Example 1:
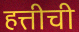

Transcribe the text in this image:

हत्तीची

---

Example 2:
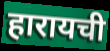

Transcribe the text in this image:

हारायची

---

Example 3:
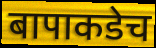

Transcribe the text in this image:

बापाकडेच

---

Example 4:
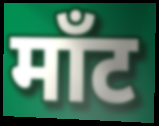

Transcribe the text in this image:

माँट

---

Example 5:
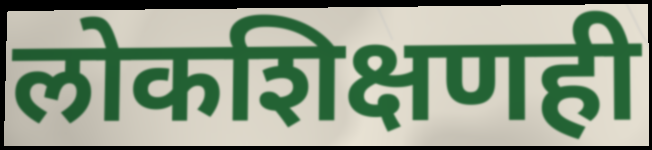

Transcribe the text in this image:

लोकशिक्षणही